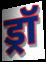
ड्रॉ